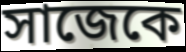
সাজেকে